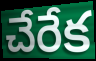
చేరేక